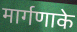
मार्गणाके